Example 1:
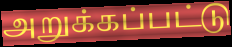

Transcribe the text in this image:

அறுக்கப்பட்டு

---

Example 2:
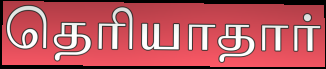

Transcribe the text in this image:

தெரியாதார்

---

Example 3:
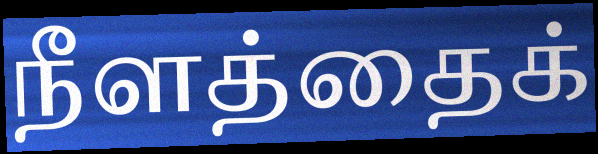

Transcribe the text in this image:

நீளத்தைக்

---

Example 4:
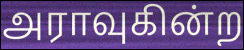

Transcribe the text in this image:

அராவுகின்ற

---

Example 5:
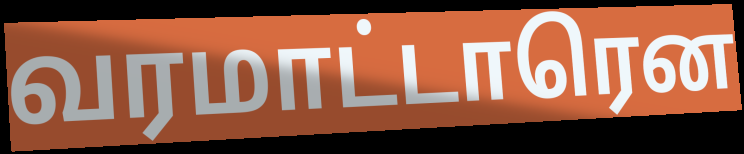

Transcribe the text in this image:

வரமாட்டாரென